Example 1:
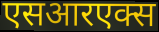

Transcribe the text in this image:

एसआरएक्स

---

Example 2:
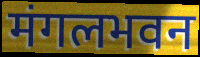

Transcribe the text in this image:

मंगलभवन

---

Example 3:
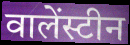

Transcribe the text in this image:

वालेंस्टीन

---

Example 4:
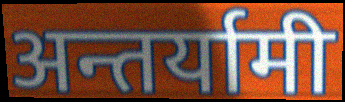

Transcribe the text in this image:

अन्तर्यामी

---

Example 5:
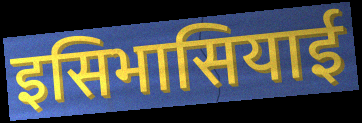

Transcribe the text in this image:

इसिभासियाई